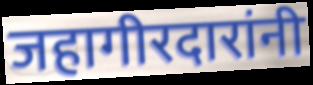
जहागीरदारांनी